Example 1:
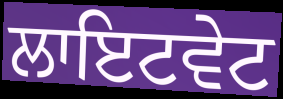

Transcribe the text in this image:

ਲਾਇਟਵੇਟ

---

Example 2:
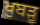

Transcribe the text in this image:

ਖੁਬੜੂ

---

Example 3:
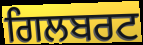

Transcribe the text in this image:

ਗਿਲਬਰਟ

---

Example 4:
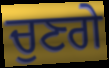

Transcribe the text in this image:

ਚੁਣਗੇ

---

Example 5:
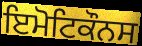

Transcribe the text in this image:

ਇਮੋਟਿਕੌਨਸ